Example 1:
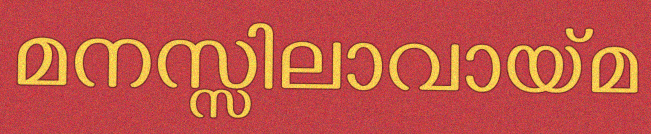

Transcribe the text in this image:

മനസ്സിലാവായ്മ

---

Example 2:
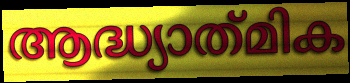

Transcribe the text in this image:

ആദ്ധ്യാത്‌മിക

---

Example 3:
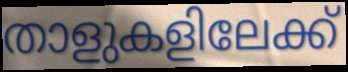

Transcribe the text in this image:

താളുകളിലേക്ക്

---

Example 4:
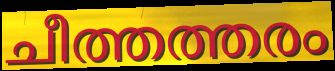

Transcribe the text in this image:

ചീത്തത്തരം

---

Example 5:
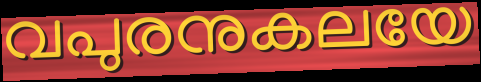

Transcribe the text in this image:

വപുരനുകലയേ